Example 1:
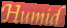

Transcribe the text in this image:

Humid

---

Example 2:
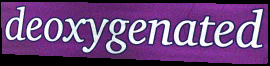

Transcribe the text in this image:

deoxygenated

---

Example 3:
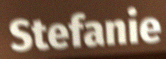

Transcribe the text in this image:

Stefanie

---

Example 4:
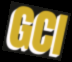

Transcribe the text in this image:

GCI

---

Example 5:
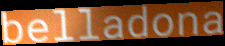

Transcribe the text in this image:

belladona